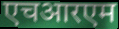
एचआरएम